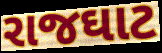
રાજઘાટ